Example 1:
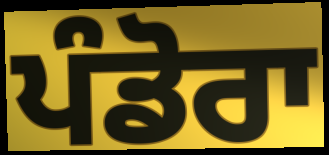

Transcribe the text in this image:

ਪੰਡੋਰਾ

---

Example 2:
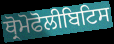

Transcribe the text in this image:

ਥ੍ਰੋਮੋਫੋਲੀਬਿਟਿਸ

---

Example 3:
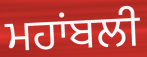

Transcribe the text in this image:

ਮਹਾਂਬਲੀ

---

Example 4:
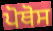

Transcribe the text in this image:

ਪੋਥੋਸ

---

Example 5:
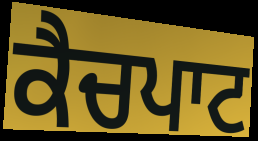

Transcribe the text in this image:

ਕੈਚਪਾਟ